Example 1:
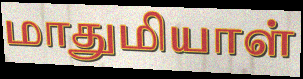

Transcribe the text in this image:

மாதுமியாள்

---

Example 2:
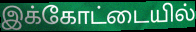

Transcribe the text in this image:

இக்கோட்டையில்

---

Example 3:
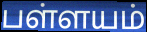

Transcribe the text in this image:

பள்ளயம்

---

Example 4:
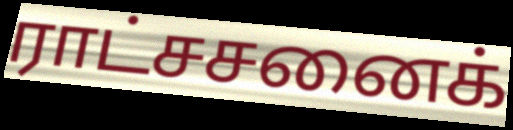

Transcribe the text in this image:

ராட்சசனைக்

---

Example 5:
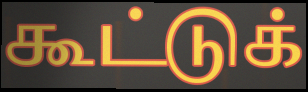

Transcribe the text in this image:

கூட்டுக்